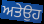
ਅਤੇਉਹ